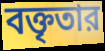
বক্তৃতার